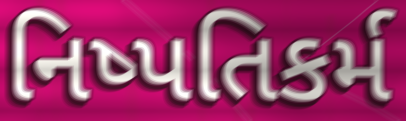
નિષ્પતિકર્મ